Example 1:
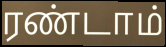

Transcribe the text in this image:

ரண்டாம்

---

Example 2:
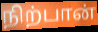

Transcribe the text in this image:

நிற்பான்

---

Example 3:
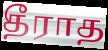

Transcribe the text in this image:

தீராத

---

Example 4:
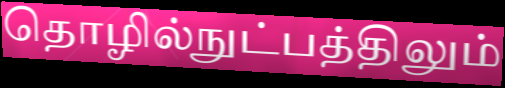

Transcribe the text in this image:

தொழில்நுட்பத்திலும்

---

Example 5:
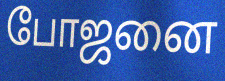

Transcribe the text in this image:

போஜனை